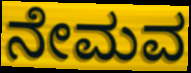
ನೇಮವ